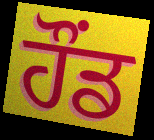
ਹੌਂਡ